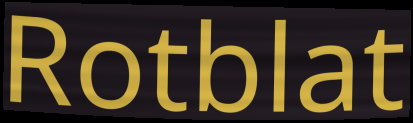
Rotblat